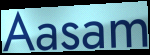
Aasam